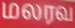
மலரவ